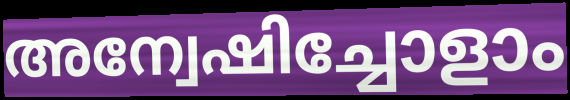
അന്വേഷിച്ചോളാം